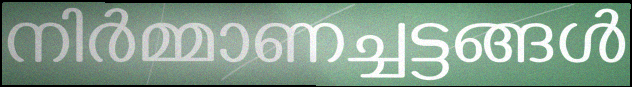
നിർമ്മാണച്ചട്ടങ്ങൾ